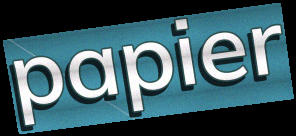
papier